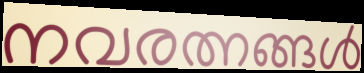
നവരത്നങ്ങൾ